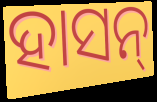
ହାସନ୍